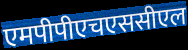
एमपीपीएचएससीएल